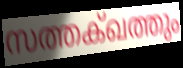
സത്തക്ഖത്തും